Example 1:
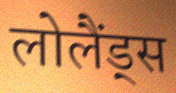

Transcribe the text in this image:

लोलैंड्स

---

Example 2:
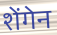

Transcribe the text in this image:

शेंगेन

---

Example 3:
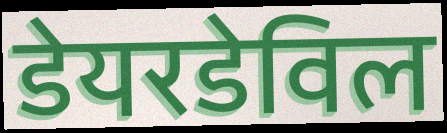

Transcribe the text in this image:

डेयरडेविल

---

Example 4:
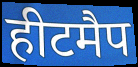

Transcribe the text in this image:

हीटमैप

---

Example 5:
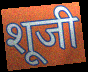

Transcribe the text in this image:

शूजी